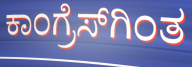
ಕಾಂಗ್ರೆಸ್‌ಗಿಂತ